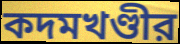
কদমখণ্ডীর